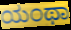
ಯಂಥಾ